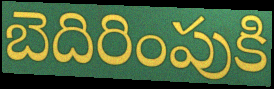
బెదిరింపుకి